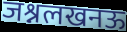
जश्नलखनऊ